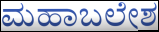
ಮಹಾಬಲೇಶ